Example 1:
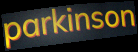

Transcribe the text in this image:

parkinson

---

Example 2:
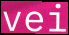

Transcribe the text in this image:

vei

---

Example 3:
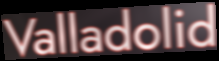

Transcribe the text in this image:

Valladolid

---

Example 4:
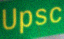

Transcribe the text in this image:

Upsc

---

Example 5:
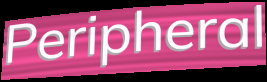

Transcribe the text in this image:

Peripheral